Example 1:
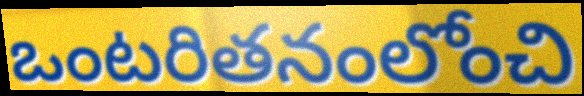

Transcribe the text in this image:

ఒంటరితనంలోంచి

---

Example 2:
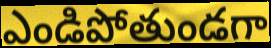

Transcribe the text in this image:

ఎండిపోతుండగా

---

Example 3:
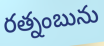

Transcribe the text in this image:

రత్నంబును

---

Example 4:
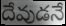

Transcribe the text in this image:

దేవుడనే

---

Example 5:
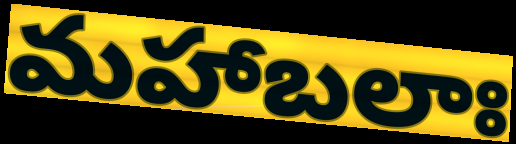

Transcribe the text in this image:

మహాబలాః